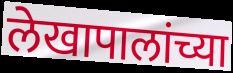
लेखापालांच्या